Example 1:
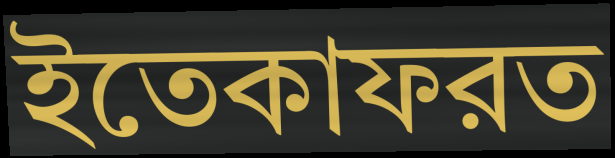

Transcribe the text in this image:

ইতেকাফরত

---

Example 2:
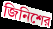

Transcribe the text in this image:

জিনিশের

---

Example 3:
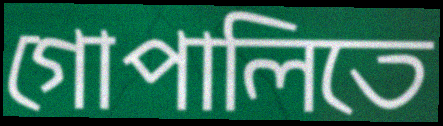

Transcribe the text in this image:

গোপালিতে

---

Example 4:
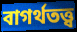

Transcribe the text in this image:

বাগর্থতত্ত্ব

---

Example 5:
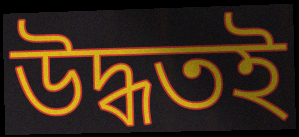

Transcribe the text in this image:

উদ্ধতই